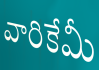
వారికేమీ